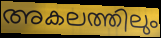
അകലത്തിലും